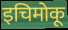
इचिमोकू